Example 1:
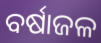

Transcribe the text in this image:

ବର୍ଷାଜଳ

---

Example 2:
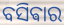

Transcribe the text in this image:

ବସିଵାର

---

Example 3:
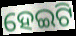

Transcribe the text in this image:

ହେଇଟି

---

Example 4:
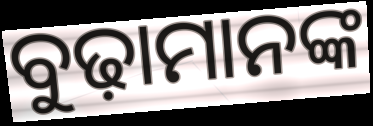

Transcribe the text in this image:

ବୁଢ଼ାମାନଙ୍କ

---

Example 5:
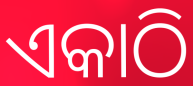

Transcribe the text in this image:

ଏକାଠି